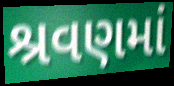
શ્રવણમાં